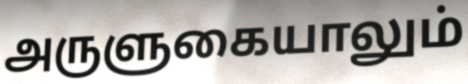
அருளுகையாலும்